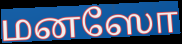
மனஸோ